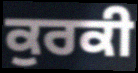
ਕੁਰਕੀ